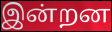
இன்றன